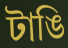
টাঙি